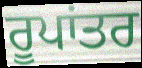
ਰੂਪਾਂਤਰ